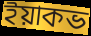
ইয়াকভ